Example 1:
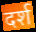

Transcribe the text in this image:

दर्श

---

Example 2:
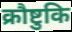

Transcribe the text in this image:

क्रौष्टुकि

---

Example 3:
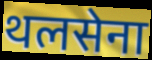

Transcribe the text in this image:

थलसेना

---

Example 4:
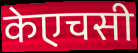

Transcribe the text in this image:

केएचसी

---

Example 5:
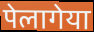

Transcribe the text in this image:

पेलागेया